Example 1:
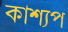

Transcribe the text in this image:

কাশ্যপ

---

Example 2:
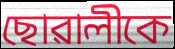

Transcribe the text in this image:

ছোৱালীকে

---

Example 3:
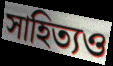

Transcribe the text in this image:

সাহিত্যও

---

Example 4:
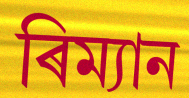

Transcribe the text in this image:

ৰিম্যান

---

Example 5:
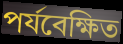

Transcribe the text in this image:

পৰ্যবেক্ষিত